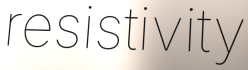
resistivity